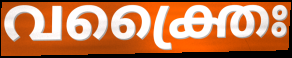
വക്ത്രൈഃ